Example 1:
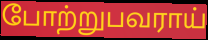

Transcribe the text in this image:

போற்றுபவராய்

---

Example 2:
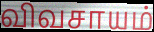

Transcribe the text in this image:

விவசாயம்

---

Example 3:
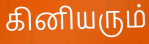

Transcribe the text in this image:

கினியரும்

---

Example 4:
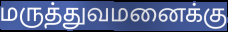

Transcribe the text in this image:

மருத்துவமனைக்கு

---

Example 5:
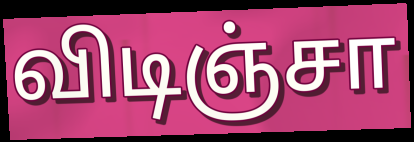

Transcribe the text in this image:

விடிஞ்சா